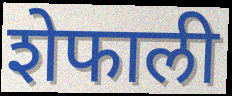
शेफाली